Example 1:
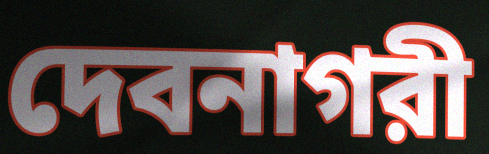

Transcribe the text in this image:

দেবনাগরী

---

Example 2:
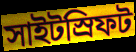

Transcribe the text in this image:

সাইটস্রিফট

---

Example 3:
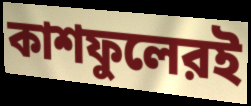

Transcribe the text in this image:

কাশফুলেরই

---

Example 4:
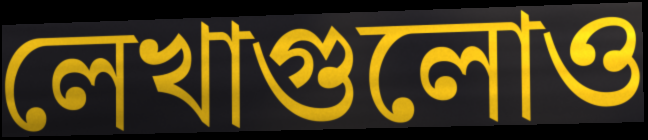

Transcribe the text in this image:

লেখাগুলোও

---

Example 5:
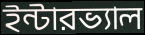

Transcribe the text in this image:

ইন্টারভ্যাল